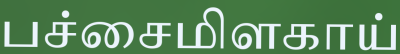
பச்சைமிளகாய்